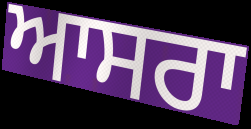
ਆਸਰਾ